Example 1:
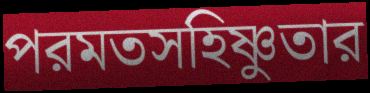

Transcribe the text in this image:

পরমতসহিষ্ণুতার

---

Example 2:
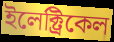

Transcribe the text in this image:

ইলেক্ট্রিকেল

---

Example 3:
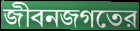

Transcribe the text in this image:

জীবনজগতের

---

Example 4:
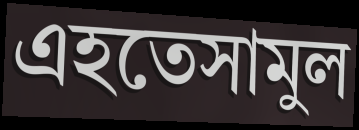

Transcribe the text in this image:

এহতেসামুল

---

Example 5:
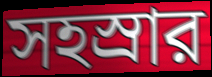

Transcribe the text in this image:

সহস্রার